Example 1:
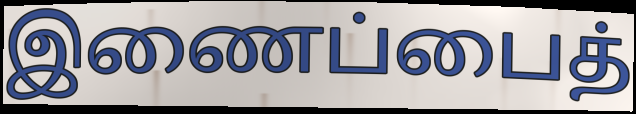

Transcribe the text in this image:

இணைப்பைத்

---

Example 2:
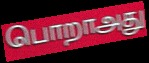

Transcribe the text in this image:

பொறாஅது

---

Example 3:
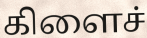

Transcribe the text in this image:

கிளைச்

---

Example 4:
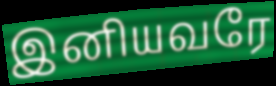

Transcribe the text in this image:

இனியவரே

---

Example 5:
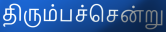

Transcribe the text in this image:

திரும்பச்சென்று